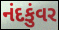
નંદકુંવર